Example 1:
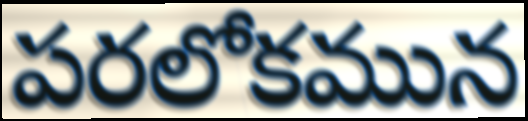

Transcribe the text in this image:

పరలోకమున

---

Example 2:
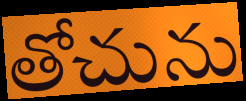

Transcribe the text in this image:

తోచును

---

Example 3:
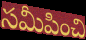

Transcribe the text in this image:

సమీపించి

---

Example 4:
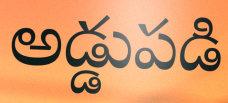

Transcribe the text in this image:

అడ్డుపడి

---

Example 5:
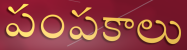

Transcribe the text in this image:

పంపకాలు